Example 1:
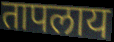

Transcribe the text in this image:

तापलाय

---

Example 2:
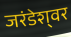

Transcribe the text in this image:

जरंडेश्वर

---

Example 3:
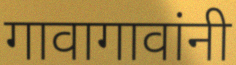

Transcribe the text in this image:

गावागावांनी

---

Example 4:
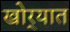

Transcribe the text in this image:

खोर्यात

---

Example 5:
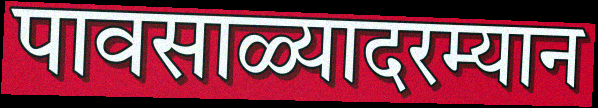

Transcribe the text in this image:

पावसाळ्यादरम्यान